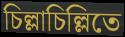
চিল্লাচিল্লিতে